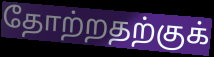
தோற்றதற்குக்